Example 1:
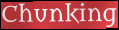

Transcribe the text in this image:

Chunking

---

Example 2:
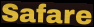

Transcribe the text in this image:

Safare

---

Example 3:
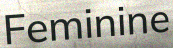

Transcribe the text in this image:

Feminine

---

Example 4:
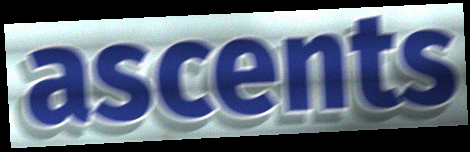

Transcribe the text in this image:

ascents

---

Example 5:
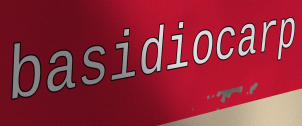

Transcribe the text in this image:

basidiocarp